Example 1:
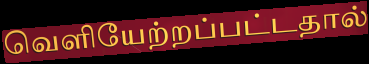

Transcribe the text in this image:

வெளியேற்றப்பட்டதால்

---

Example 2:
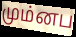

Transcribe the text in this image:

மும்னப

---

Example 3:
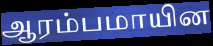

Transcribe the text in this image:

ஆரம்பமாயின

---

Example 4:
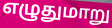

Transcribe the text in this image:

எழுதுமாறு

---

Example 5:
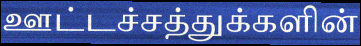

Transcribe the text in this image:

ஊட்டச்சத்துக்களின்